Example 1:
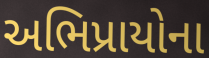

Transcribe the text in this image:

અભિપ્રાયોના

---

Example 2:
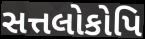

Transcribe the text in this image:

સત્તલોકોપિ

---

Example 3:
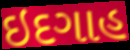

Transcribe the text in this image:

ઇદગાહ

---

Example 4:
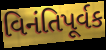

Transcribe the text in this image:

વિનંતિપૂર્વક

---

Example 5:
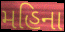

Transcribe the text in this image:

મહિના